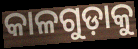
କାଳଗୁଡ଼ାକୁ